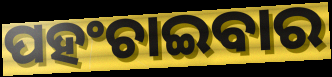
ପହଂଚାଇବାର